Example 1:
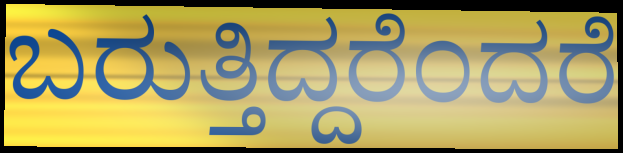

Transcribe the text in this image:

ಬರುತ್ತಿದ್ದರೆಂದರೆ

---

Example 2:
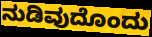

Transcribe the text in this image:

ನುಡಿವುದೊಂದು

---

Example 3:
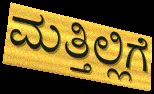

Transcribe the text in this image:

ಮತ್ತಿಲ್ಲಿಗೆ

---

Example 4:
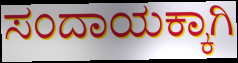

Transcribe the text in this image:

ಸಂದಾಯಕ್ಕಾಗಿ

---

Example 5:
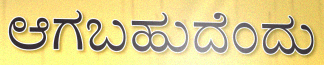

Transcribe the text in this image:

ಆಗಬಹುದೆಂದು